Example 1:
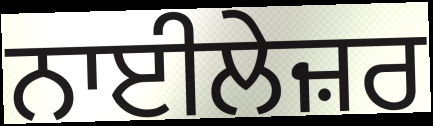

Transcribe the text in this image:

ਨਾਈਲੇਜ਼ਰ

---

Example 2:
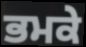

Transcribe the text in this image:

ਭਮਕੇ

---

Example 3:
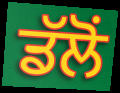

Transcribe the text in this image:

ਡੱਲੋਂ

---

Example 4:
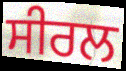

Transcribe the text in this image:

ਸੀਰਲ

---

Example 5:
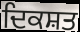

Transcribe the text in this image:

ਦਿਕਸ਼ਤ